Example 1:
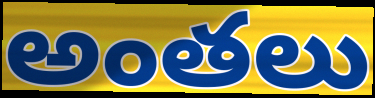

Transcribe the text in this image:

అంతలు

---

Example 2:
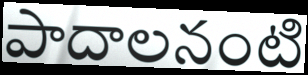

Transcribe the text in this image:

పాదాలనంటి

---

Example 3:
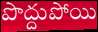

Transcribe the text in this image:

పొద్దుపోయి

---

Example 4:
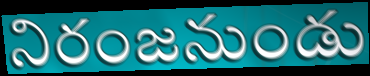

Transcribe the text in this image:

నిరంజనుండు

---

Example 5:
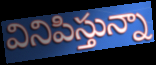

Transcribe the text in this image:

వినిపిస్తున్నా